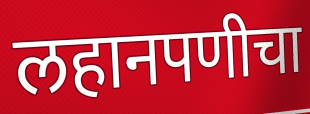
लहानपणीचा